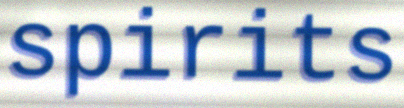
spirits